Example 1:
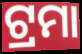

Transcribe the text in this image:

ଟ୍ରମା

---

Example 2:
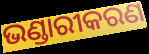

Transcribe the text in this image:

ଭଣ୍ଡାରୀକରଣ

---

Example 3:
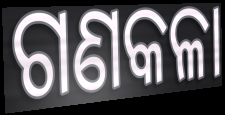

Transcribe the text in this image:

ଗଣକଳା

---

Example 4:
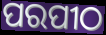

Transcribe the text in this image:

ପରପୀଠ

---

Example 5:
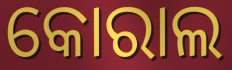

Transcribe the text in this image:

କୋରାଲ